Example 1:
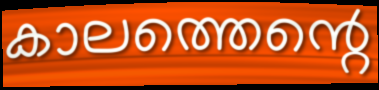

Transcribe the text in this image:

കാലത്തെന്റെ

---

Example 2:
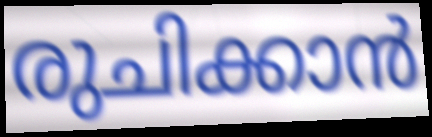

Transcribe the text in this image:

രുചിക്കാൻ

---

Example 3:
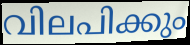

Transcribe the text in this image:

വിലപിക്കും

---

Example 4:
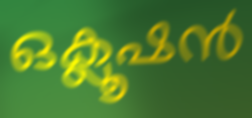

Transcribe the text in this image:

ഒക്ലൂഷൻ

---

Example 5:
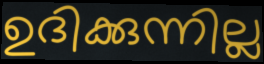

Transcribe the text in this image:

ഉദിക്കുന്നില്ല